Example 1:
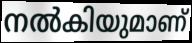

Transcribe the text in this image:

നൽകിയുമാണ്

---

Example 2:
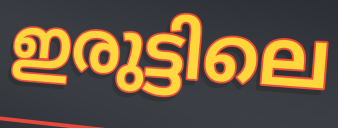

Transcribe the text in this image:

ഇരുട്ടിലെ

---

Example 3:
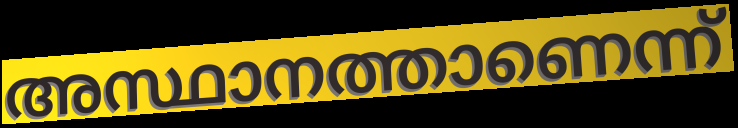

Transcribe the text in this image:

അസ്ഥാനത്താണെന്ന്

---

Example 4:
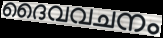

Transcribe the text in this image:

ദൈവവചനം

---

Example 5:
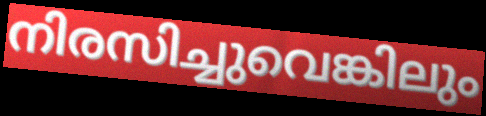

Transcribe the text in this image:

നിരസിച്ചുവെങ്കിലും